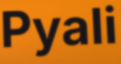
Pyali